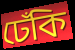
ঢেঁকি